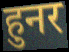
हुनर